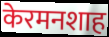
केरमनशाह